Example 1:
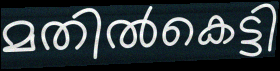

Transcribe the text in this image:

മതിൽകെട്ടി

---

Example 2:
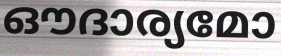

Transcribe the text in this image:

ഔദാര്യമോ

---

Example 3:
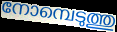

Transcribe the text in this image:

നോമ്പെടുത്തു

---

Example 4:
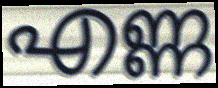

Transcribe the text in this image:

എണ്ണ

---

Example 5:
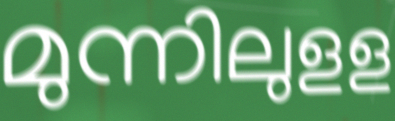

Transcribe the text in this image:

മുന്നിലുളള